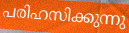
പരിഹസിക്കുന്നു